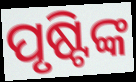
ପୃଷ୍ଟିଙ୍କ